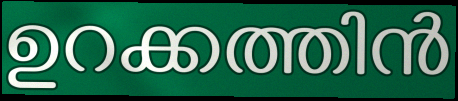
ഉറക്കത്തിൻ